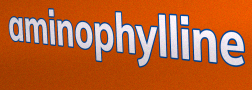
aminophylline